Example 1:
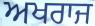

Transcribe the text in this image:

ਅਖਰਾਜ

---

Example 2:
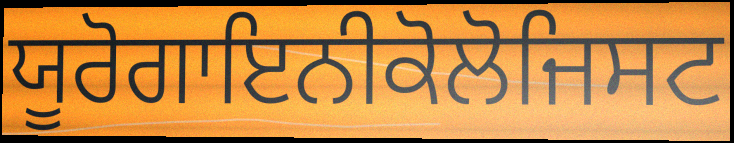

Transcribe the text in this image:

ਯੂਰੋਗਾਇਨੀਕੋਲੋਜਿਸਟ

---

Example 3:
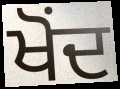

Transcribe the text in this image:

ਖੋਂਦ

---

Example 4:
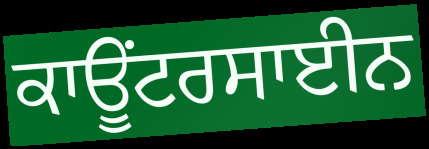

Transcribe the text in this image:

ਕਾਊਂਟਰਸਾਈਨ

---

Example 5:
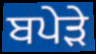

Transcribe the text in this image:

ਬਪੇੜੇ